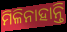
ମିଳିନାହାନ୍ତି